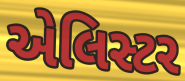
એલિસ્ટર